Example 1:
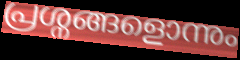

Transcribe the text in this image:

പ്രശ്നങ്ങളൊന്നും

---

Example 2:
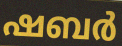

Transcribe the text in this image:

ഷബർ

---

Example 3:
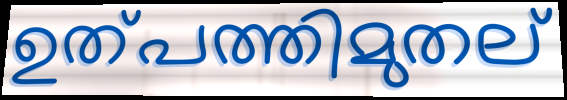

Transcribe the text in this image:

ഉത്പത്തിമുതല്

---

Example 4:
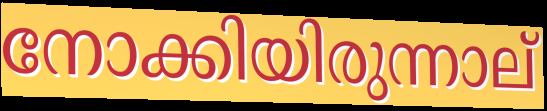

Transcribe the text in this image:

നോക്കിയിരുന്നാല്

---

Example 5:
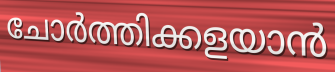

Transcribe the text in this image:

ചോർത്തിക്കളയാൻ